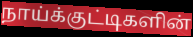
நாய்க்குட்டிகளின்